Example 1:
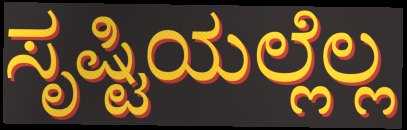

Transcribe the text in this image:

ಸೃಷ್ಟಿಯಲ್ಲೆಲ್ಲ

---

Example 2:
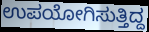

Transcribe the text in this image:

ಉಪಯೋಗಿಸುತ್ತಿದ್ದ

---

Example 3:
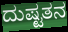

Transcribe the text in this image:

ದುಷ್ಟತನ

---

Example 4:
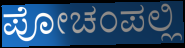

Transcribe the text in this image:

ಪೋಚಂಪಲ್ಲಿ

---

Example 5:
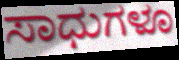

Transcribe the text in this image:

ಸಾಧುಗಳೂ